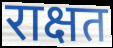
राक्षत